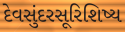
દેવસુંદરસૂરિશિષ્ય